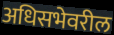
अधिसभेवरील